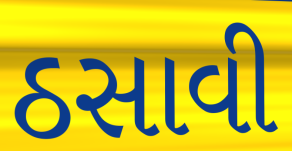
ઠસાવી